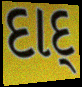
દાદ્